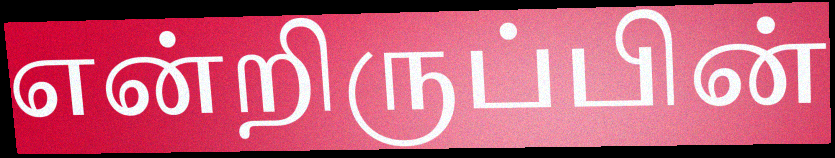
என்றிருப்பின்